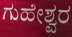
ಗುಹೇಶ್ವರ